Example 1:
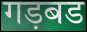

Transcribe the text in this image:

गड़बड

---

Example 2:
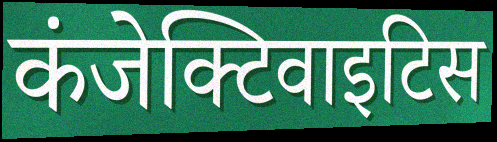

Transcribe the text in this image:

कंजेक्टिवाइटिस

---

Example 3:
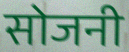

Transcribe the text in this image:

सोजनी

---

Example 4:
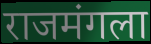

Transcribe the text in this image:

राजमंगला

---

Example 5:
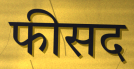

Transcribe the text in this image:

फीसद